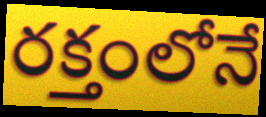
రక్తంలోనే